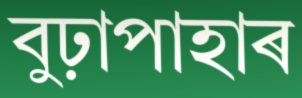
বুঢ়াপাহাৰ